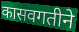
कासवगतीने